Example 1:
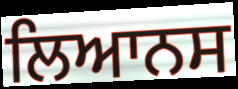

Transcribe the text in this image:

ਲਿਆਨਸ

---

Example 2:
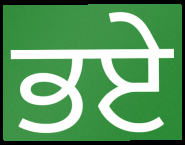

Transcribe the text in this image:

ਭਏ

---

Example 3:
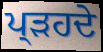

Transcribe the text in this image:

ਪ੍ੜਹਦੇ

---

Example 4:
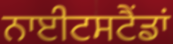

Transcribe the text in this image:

ਨਾਈਟਸਟੈਂਡਾਂ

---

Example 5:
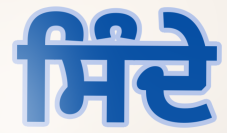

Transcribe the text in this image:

ਸਿੰਦੇ